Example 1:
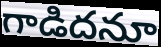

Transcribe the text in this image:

గాడిదనూ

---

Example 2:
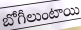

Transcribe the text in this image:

బోగీలుంటాయి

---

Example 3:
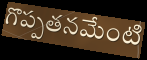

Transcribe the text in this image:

గొప్పతనమేంటి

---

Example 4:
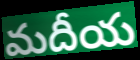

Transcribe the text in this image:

మదీయ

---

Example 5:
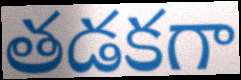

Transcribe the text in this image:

తడకగా